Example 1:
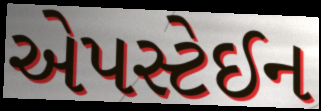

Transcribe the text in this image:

એપસ્ટેઈન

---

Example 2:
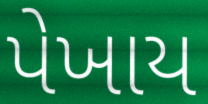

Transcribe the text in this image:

પેખાય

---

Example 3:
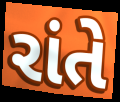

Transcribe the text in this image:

રાંતે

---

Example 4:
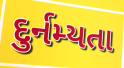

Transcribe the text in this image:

દુર્નમ્યતા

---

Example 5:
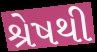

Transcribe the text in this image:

શ્રેષથી